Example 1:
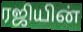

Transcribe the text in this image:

ரஜியின்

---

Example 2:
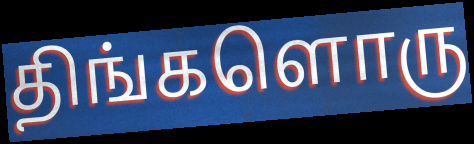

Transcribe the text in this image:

திங்களொரு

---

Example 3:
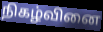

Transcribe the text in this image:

நிகழ்வினை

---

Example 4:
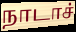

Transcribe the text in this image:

நாடாச்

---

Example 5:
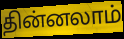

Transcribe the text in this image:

தின்னலாம்